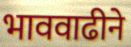
भाववाढीने